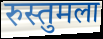
रुस्तुमला